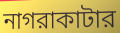
নাগরাকাটার